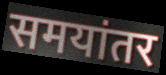
समयांतर